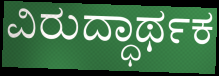
ವಿರುದ್ಧಾರ್ಥಕ